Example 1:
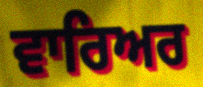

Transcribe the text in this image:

ਵਾਰਿਅਰ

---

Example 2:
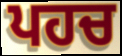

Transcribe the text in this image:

ਪਹਚ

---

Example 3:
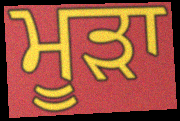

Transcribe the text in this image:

ਮੂੜਾ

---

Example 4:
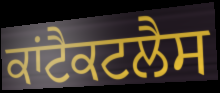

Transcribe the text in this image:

ਕਾਂਟੈਕਟਲੈਸ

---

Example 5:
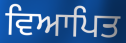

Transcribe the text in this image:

ਵਿਆਪਿਤ